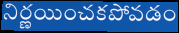
నిర్ణయించకపోవడం